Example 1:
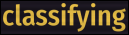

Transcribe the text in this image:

classifying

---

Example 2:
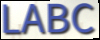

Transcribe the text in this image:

LABC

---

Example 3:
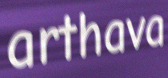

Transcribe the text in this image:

arthava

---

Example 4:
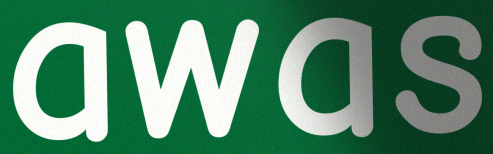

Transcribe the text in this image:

awas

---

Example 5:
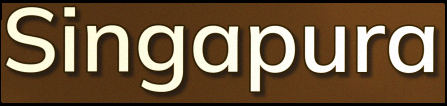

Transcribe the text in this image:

Singapura